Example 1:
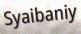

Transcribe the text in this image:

Syaibaniy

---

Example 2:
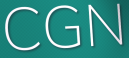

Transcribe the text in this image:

CGN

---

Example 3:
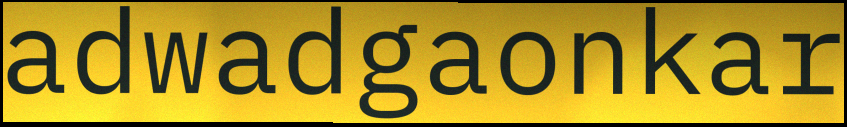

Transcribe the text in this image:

adwadgaonkar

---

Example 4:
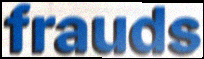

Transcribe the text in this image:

frauds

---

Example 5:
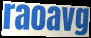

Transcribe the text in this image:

raoavg